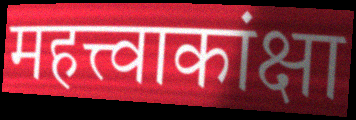
महत्त्वाकांक्षा